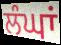
ਲੰਘਾਂ